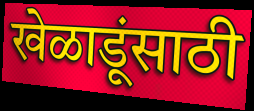
खेळाडूंसाठी